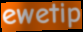
ewetip